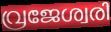
വ്രജേശ്വരി